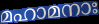
മഹാമനാഃ